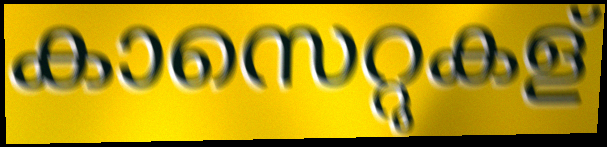
കാസെറ്റുകള്